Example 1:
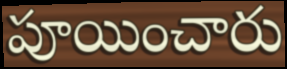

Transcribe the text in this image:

పూయించారు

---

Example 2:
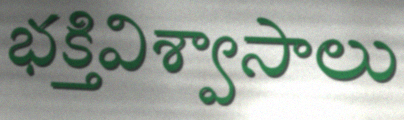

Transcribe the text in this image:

భక్తివిశ్వాసాలు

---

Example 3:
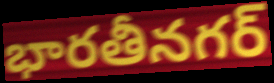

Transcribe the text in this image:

భారతీనగర్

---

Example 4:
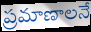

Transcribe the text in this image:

ప్రమాణాలనే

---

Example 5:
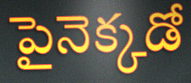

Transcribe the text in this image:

పైనెక్కడో